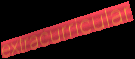
extracurricular